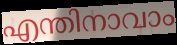
എന്തിനാവാം